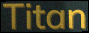
Titan